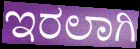
ಇರಲಾಗಿ